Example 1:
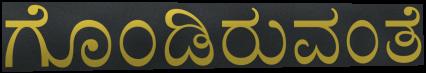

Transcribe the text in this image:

ಗೊಂಡಿರುವಂತೆ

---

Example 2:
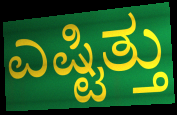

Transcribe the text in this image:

ಎಷ್ಟಿತ್ತು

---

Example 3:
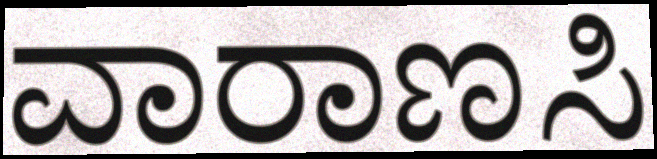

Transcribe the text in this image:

ವಾರಾಣಸಿ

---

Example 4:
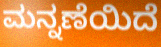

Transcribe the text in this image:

ಮನ್ನಣೆಯಿದೆ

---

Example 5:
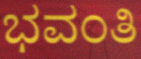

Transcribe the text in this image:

ಭವಂತಿ